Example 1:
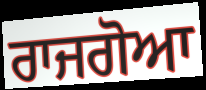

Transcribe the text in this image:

ਰਾਜਗੋਆ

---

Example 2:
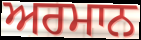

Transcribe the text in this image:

ਅਰਮਾਨ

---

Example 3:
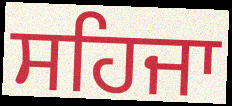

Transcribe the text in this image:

ਸਹਿਜਾ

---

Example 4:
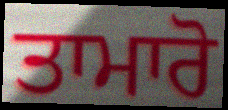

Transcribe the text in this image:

ਤਾਮਾਰੋ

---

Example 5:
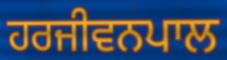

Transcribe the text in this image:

ਹਰਜੀਵਨਪਾਲ